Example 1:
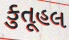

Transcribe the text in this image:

કુતૂહલ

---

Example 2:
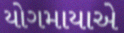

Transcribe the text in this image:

યોગમાયાએ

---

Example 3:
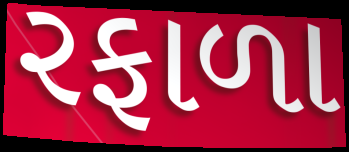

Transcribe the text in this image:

રફાળા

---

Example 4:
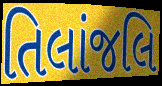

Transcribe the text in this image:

તિલાંજલિ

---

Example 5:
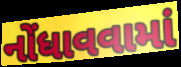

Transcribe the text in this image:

નોંધાવવામાં